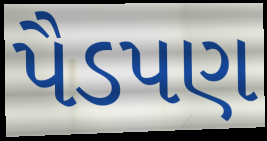
પૈડપણ